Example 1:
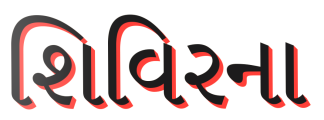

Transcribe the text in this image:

શિવિરના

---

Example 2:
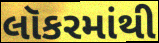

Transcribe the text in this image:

લૉકરમાંથી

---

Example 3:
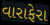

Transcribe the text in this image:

વારાફેરા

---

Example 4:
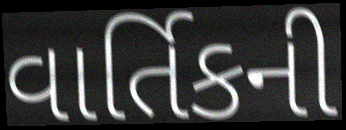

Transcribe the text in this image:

વાર્તિકની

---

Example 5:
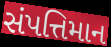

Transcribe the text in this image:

સંપત્તિમાન